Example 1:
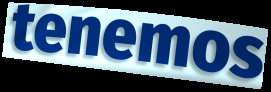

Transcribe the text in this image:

tenemos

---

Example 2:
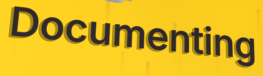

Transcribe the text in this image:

Documenting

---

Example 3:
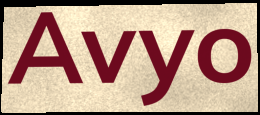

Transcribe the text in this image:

Avyo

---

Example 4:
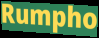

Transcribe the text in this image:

Rumpho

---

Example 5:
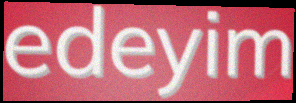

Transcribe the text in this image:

edeyim